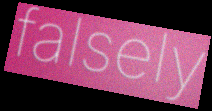
falsely